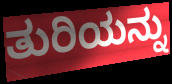
ತುರಿಯನ್ನು